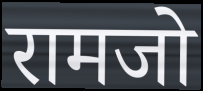
रामजो